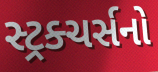
સ્ટ્રક્ચર્સનો